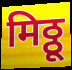
मिठ्ठू